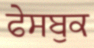
ਫੇਸਬੁਕ